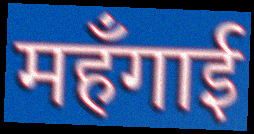
महँगाई